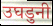
उघडुनी